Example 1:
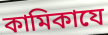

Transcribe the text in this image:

কামিকাযে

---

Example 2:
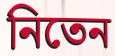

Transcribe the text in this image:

নিতেন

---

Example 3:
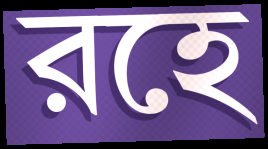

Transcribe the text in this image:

রহে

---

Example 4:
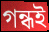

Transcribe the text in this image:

গন্ধই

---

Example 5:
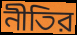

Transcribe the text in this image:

নীতির